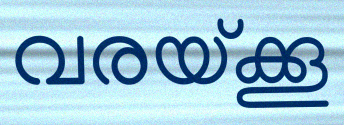
വരയ്ക്കൂ